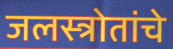
जलस्त्रोतांचे